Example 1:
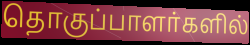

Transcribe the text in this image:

தொகுப்பாளர்களில்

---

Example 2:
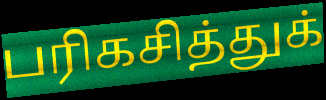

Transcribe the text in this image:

பரிகசித்துக்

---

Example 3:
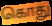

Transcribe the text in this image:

கொது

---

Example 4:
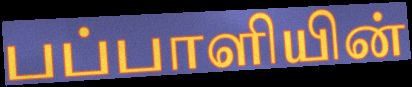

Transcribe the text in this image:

பப்பாளியின்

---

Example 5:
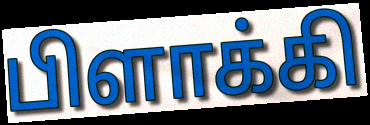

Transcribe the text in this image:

பிளாக்கி